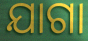
ଯାଗା